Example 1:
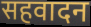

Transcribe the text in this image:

सहवादन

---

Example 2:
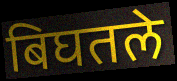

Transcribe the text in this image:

बिघतले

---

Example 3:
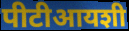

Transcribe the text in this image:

पीटीआयशी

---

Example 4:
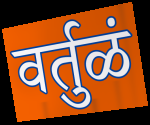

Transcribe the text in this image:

वर्तुळं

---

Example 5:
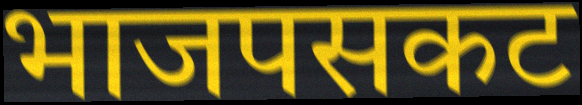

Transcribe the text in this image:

भाजपसकट